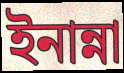
ইনান্না